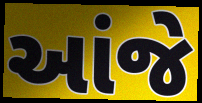
આંજે